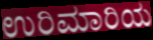
ಉರಿಮಾರಿಯ